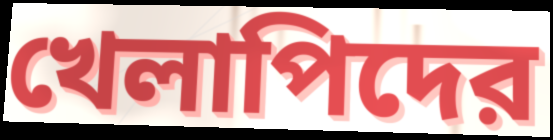
খেলাপিদের